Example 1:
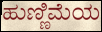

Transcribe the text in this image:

ಹುಣ್ಣಿಮೆಯ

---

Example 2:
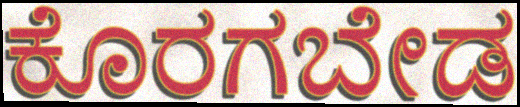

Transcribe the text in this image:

ಕೊರಗಬೇಡ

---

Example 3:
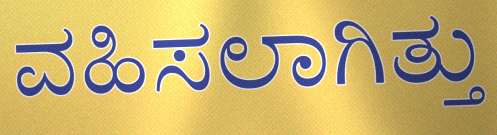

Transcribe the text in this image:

ವಹಿಸಲಾಗಿತ್ತು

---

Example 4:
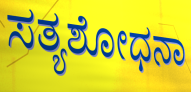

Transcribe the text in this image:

ಸತ್ಯಶೋಧನಾ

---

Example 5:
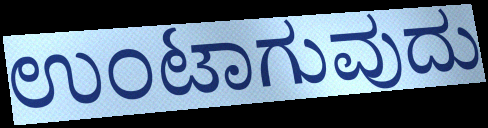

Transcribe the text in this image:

ಉಂಟಾಗುವುದು